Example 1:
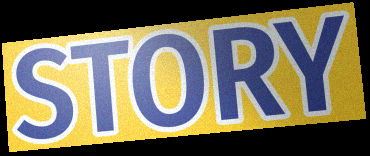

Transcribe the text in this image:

STORY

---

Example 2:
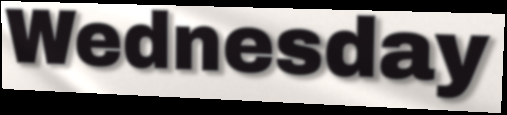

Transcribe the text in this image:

Wednesday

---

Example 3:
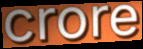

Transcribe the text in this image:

crore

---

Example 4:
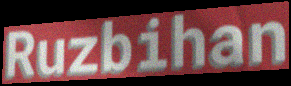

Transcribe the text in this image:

Ruzbihan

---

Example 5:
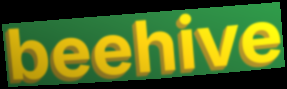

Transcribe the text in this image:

beehive